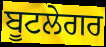
ਬੂਟਲੇਗਰ